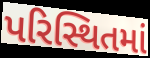
પરિસ્થિતમાં